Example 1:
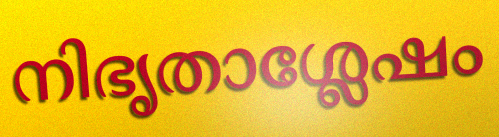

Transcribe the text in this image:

നിഭൃതാശ്ലേഷം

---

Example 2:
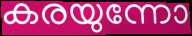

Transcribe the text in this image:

കരയുന്നോ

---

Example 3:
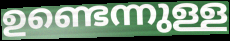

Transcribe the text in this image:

ഉണ്ടെന്നുള്ള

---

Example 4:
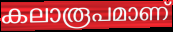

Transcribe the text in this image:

കലാരൂപമാണ്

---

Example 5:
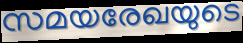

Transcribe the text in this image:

സമയരേഖയുടെ